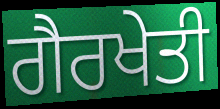
ਗੈਰਖੇਤੀ